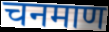
चनमाण